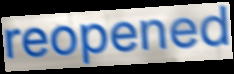
reopened